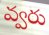
వ్వరు